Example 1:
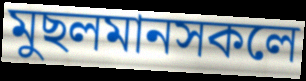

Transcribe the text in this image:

মুছলমানসকলে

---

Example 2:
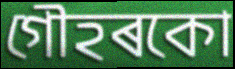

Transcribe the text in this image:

গৌহৰকো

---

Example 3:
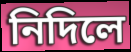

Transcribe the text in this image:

নিদিলে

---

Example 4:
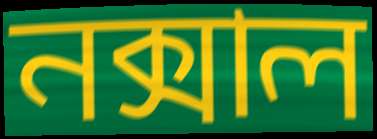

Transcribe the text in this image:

নক্সাল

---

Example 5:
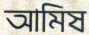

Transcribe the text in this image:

আমিষ